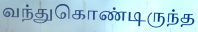
வந்துகொண்டிருந்த